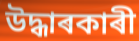
উদ্ধাৰকাৰী